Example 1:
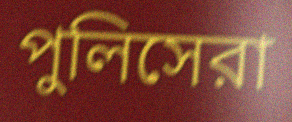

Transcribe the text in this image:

পুলিসেরা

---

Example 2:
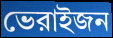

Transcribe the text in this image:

ভেরাইজন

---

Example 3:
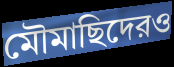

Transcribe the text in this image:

মৌমাছিদেরও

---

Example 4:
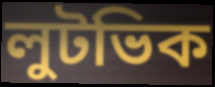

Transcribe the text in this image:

লুটভিক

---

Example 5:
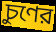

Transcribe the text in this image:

চুণের